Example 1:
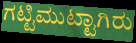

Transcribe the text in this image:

ಗಟ್ಟಿಮುಟ್ಟಾಗಿರು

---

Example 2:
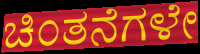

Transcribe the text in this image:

ಚಿಂತನೆಗಳೇ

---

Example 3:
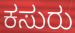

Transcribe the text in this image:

ಕಸುರು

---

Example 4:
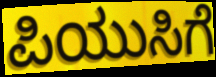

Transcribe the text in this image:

ಪಿಯುಸಿಗೆ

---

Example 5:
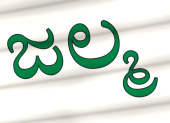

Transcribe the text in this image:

ಜಲ್ಮ